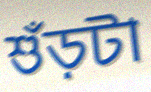
শুঁড়টা